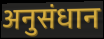
अनुसंधान